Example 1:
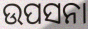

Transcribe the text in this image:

ଉପସନା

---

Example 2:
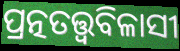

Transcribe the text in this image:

ପ୍ରତ୍ନତତ୍ତ୍ବବିଳାସୀ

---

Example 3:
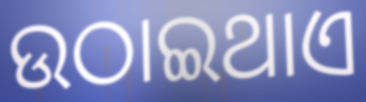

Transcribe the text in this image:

ଉଠାଇଥାଏ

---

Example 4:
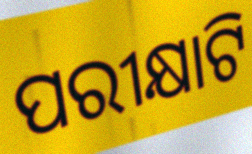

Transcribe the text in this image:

ପରୀକ୍ଷାଟି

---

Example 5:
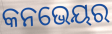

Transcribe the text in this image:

କନଭେୟର